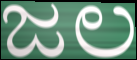
ಜಲ